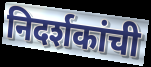
निदर्शकांची